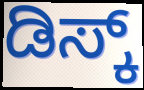
ಡಿಸ್ಕ್